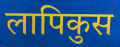
लापिकुस